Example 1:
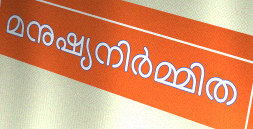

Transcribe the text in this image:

മനുഷ്യനിർമ്മിത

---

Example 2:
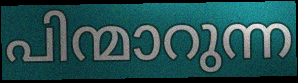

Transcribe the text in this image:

പിന്മാറുന്ന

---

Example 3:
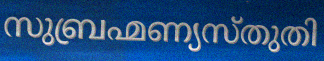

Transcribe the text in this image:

സുബ്രഹ്മണ്യസ്തുതി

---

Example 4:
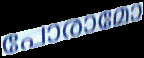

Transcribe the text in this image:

പോരാമോ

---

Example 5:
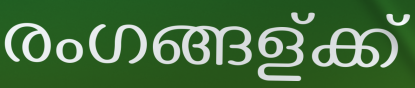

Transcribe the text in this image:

രംഗങ്ങള്ക്ക്